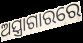
ଅସ୍ତ୍ରାଗାରରେ